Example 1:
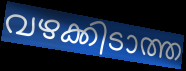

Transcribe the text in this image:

വഴക്കിടാത്ത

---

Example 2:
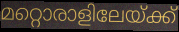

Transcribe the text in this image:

മറ്റൊരാളിലേയ്ക്ക്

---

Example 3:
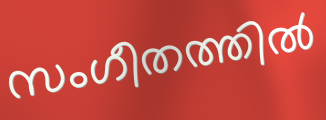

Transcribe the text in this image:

സംഗീതത്തിൽ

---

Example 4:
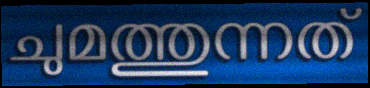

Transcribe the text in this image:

ചുമത്തുന്നത്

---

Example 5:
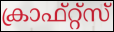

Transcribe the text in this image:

ക്രാഫ്റ്റ്സ്